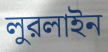
লুরলাইন